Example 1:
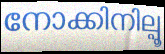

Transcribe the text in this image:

നോക്കിനില്പൂ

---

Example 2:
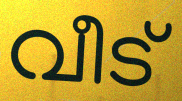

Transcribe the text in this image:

വീട്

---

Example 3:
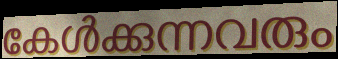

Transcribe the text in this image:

കേൾക്കുന്നവരും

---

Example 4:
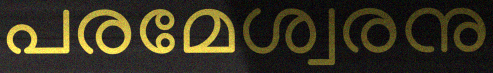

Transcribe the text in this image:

പരമേശ്വരനു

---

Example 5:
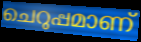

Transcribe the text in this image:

ചെറുപ്പമാണ്